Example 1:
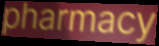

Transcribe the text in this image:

pharmacy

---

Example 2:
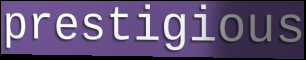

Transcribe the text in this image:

prestigious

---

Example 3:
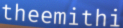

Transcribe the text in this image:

theemithi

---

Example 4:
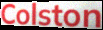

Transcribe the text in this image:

Colston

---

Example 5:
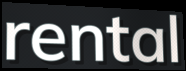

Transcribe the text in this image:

rental